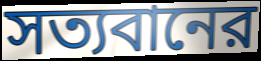
সত্যবানের